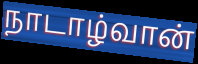
நாடாழ்வான்